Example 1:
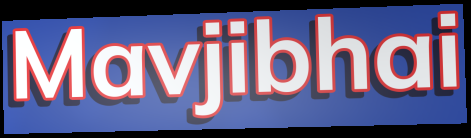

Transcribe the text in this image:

Mavjibhai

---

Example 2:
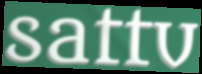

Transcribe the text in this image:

sattu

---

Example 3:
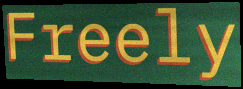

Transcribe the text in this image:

Freely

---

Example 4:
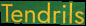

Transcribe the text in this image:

Tendrils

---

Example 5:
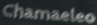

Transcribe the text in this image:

Chamaeleo